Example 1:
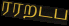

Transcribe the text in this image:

ரரறடப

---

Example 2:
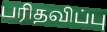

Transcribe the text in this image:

பரிதவிப்பு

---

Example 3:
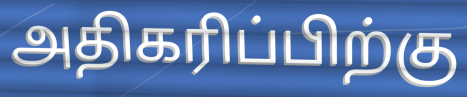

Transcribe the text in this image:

அதிகரிப்பிற்கு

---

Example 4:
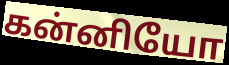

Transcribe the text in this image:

கன்னியோ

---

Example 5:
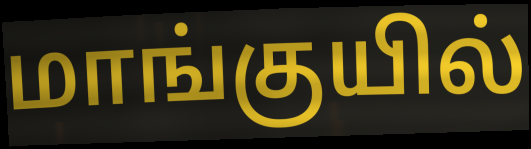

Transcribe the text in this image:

மாங்குயில்